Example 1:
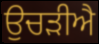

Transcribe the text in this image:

ਉਚੜੀਐ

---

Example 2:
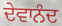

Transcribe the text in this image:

ਦੇਵਾਨੰਦ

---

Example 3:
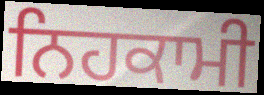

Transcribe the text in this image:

ਨਿਹਕਾਮੀ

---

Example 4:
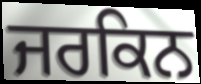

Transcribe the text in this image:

ਜਰਕਿਨ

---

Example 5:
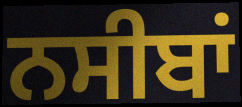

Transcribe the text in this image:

ਨਸੀਬਾਂ